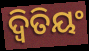
ଦ୍ୱିତିୟଂ